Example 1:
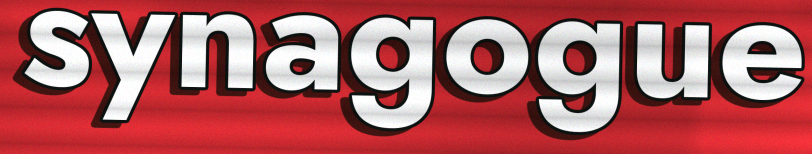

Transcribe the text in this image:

synagogue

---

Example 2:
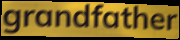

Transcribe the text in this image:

grandfather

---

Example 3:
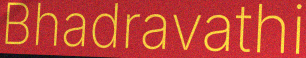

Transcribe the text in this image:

Bhadravathi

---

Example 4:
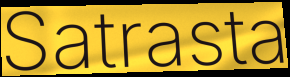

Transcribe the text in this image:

Satrasta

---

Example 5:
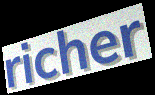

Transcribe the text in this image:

richer